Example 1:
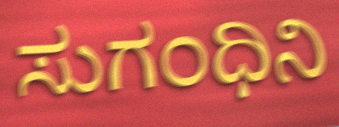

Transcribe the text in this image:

ಸುಗಂಧಿನಿ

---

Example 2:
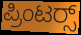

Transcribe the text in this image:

ಪ್ರಿಂಟರ‍್ಸ್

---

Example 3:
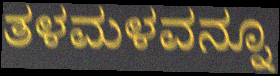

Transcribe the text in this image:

ತಳಮಳವನ್ನೂ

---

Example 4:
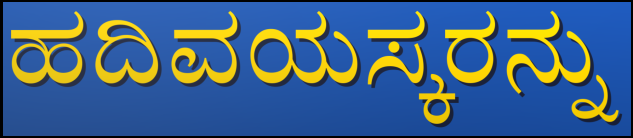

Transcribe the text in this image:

ಹದಿವಯಸ್ಕರನ್ನು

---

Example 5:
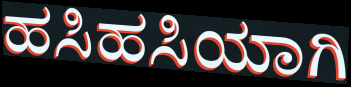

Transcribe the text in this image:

ಹಸಿಹಸಿಯಾಗಿ